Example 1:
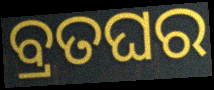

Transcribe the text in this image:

ବ୍ରତଘର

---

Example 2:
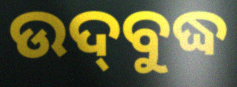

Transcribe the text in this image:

ଉଦ୍‍ବୁଦ୍ଧ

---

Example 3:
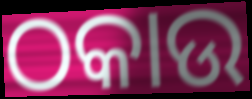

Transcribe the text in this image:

ଠକାଉ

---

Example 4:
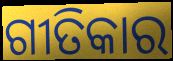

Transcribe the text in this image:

ଗୀତିକାର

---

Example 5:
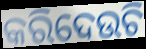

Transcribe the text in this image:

କରିଦେଉଚି